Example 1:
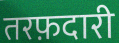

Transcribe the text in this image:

तरफ़दारी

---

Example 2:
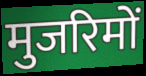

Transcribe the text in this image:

मुजरिमों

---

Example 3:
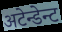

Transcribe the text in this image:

अटेन्डेन्ट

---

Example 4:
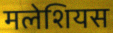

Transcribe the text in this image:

मलेशियस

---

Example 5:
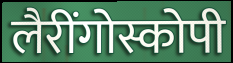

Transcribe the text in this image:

लैरींगोस्कोपी